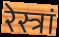
रेस्त्रां